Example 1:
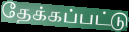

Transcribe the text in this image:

தேக்கப்பட்டு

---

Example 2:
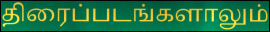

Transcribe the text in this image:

திரைப்படங்களாலும்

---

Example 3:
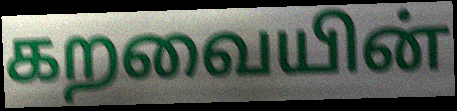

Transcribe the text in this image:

கறவையின்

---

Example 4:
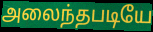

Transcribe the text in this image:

அலைந்தபடியே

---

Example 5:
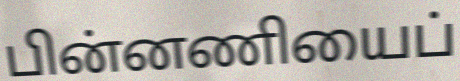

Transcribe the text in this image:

பின்னணியைப்